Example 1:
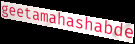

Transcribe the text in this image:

geetamahashabde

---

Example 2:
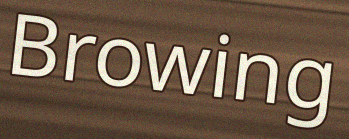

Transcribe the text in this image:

Browing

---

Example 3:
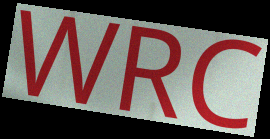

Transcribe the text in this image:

WRC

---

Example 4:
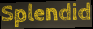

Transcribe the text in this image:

Splendid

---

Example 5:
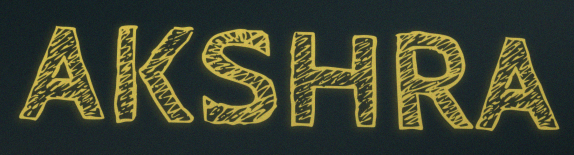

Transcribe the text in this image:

AKSHRA